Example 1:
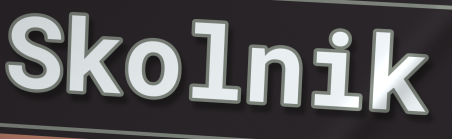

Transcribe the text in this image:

Skolnik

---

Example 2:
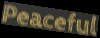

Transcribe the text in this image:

Peaceful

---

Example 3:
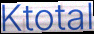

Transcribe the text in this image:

Ktotal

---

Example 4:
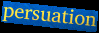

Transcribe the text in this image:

persuation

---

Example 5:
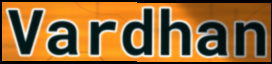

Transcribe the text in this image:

Vardhan